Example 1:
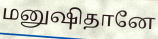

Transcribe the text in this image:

மனுஷிதானே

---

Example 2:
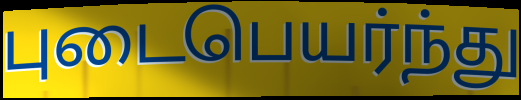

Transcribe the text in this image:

புடைபெயர்ந்து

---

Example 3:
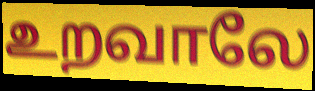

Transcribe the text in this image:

உறவாலே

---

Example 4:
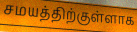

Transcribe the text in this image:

சமயத்திற்குள்ளாக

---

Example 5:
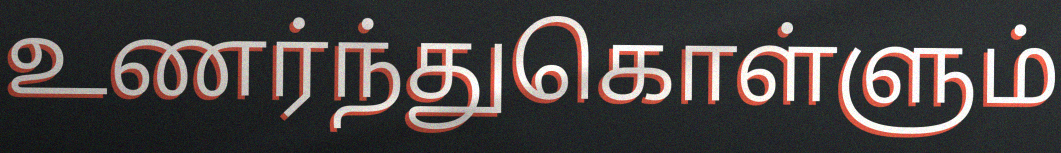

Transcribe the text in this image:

உணர்ந்துகொள்ளும்